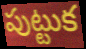
పుట్టుక